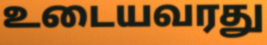
உடையவரது